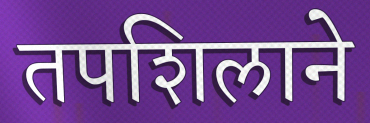
तपशिलाने